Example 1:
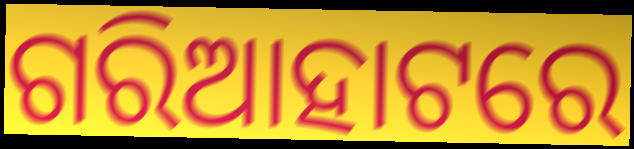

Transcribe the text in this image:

ଗରିଆହାଟରେ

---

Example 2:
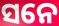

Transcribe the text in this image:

ସନେ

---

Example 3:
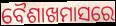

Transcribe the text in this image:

ବୈଶାଖମାସରେ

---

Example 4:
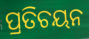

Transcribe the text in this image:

ପ୍ରତିଚୟନ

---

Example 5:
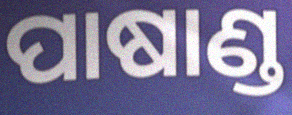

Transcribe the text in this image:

ପାଷାଣ୍ଡ